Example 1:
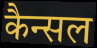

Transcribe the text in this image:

कैन्सल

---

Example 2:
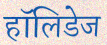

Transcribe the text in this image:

हॉलिडेज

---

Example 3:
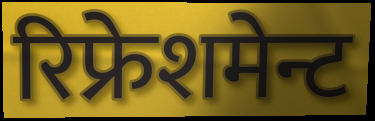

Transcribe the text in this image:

रिफ्रेशमेन्ट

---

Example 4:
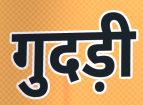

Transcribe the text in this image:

गुदड़ी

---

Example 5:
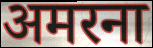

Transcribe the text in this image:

अमरना